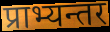
प्राभ्यन्तर